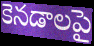
కెనడాలపై